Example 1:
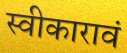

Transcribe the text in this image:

स्वीकारावं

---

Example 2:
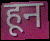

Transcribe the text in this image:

हून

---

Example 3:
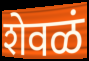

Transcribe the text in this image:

शेवळं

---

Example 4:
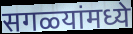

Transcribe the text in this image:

सगळ्यांमध्ये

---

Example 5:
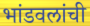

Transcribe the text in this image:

भांडवलांची